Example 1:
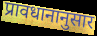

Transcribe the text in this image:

प्रावधानानुसार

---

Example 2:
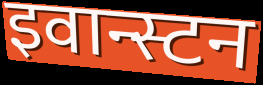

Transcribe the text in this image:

इवान्स्टन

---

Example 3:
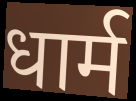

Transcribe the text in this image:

धार्म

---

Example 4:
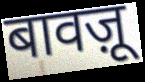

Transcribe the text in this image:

बावज़ू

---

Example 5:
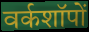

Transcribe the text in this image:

वर्कशॉपों